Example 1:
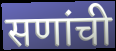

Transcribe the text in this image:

सणांची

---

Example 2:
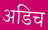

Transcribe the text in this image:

अडिच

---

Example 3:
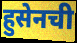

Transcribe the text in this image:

हुसेनची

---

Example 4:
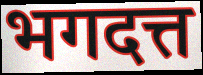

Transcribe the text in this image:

भगदत्त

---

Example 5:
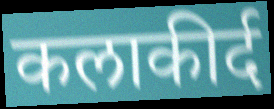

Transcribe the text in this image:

कलाकीर्द